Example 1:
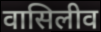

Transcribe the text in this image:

वासिलीव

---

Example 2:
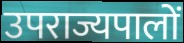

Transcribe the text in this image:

उपराज्यपालों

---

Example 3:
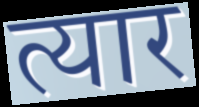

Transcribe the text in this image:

त्यार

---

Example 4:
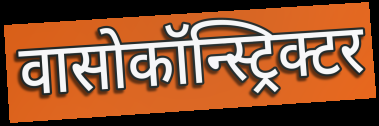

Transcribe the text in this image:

वासोकॉन्स्ट्रिक्टर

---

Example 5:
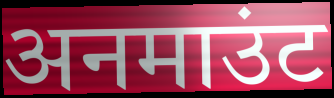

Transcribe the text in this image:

अनमाउंट